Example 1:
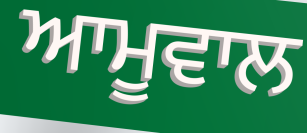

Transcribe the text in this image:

ਆਮੂਵਾਲ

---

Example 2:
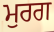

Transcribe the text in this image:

ਮੁਰਗ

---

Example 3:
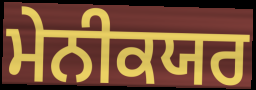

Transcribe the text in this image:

ਮੇਨੀਕਯਰ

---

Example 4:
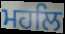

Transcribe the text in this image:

ਮਹਲਿ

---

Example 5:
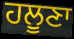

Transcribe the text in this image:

ਹਲੂਣਾ